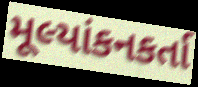
મૂલ્યાંકનકર્તા